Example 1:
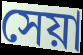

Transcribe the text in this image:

সেয়া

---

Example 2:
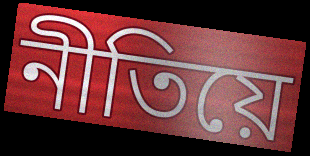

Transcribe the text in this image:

নীতিয়ে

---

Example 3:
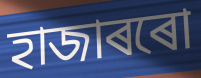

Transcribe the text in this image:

হাজাৰৰো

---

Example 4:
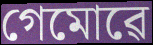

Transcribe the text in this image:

গেমোৱে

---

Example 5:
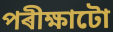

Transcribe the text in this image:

পৰীক্ষাটো